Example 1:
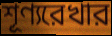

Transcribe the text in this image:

শূণ্যরেখার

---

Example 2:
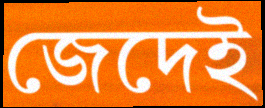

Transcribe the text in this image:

জেদেই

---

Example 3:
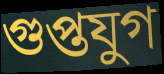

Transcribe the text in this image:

গুপ্তযুগ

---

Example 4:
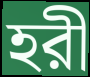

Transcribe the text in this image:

হরী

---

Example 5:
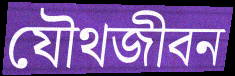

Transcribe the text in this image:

যৌথজীবন